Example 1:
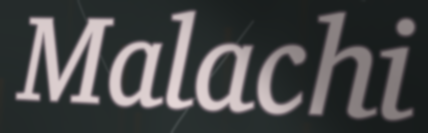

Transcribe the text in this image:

Malachi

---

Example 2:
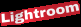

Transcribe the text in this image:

Lightroom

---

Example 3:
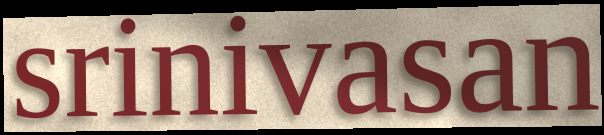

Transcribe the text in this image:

srinivasan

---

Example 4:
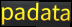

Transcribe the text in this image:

padata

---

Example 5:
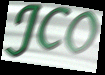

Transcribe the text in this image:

JCO